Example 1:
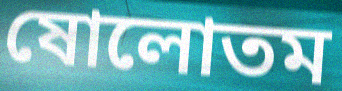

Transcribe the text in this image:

ষোলোতম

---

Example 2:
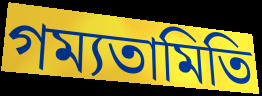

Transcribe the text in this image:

গম্যতামিতি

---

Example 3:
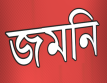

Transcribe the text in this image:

জমনি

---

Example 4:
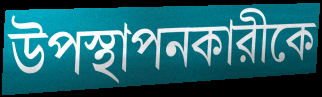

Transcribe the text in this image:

উপস্থাপনকারীকে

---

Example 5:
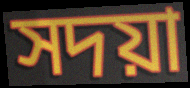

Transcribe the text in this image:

সদয়া